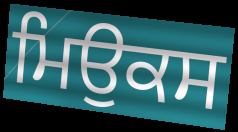
ਮਿਉਕਸ